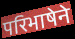
परिभाषेने